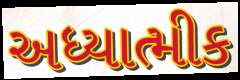
અધ્યાત્મીક